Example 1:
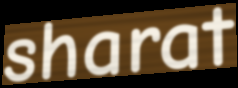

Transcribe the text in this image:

sharat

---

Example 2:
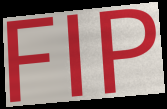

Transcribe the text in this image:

FIP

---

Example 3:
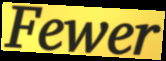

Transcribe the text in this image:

Fewer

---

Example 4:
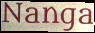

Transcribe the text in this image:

Nanga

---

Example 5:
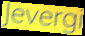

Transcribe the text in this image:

Jevergi